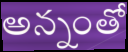
అన్నంతో